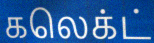
கலெக்ட்